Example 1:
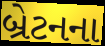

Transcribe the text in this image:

બ્રેટનના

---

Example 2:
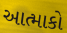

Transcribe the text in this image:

આત્માકો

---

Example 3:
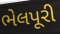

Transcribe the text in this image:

ભેલપૂરી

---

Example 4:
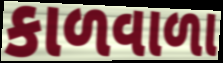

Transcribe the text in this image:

કાળવાળા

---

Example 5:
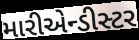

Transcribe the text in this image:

મારીએન્ડીસ્ટર